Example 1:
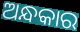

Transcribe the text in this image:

ଅନ୍ଧକାର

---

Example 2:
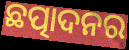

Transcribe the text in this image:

ଛତ୍ପାଦନର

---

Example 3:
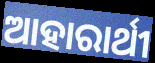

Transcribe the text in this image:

ଆହାରାର୍ଥୀ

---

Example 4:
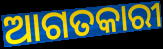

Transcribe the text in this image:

ଆଗତକାରୀ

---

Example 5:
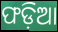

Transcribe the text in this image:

ଫଡ଼ିଆ